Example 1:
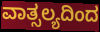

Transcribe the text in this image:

ವಾತ್ಸಲ್ಯದಿಂದ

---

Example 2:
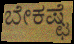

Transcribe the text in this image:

ಬೇಕಷ್ಟೆ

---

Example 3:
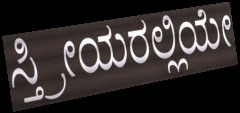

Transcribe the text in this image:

ಸ್ತ್ರೀಯರಲ್ಲಿಯೇ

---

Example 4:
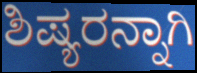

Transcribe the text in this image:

ಶಿಷ್ಯರನ್ನಾಗಿ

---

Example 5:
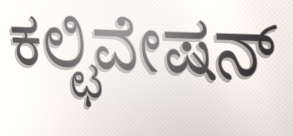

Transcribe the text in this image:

ಕಲ್ಟಿವೇಷನ್